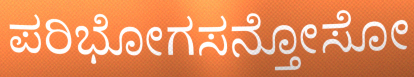
ಪರಿಭೋಗಸನ್ತೋಸೋ